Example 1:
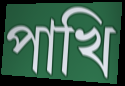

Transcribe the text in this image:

পাখি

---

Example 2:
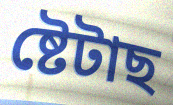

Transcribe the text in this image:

ষ্টেটাছ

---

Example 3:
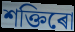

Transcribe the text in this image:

শক্তিৰো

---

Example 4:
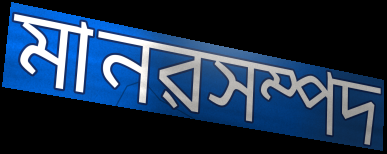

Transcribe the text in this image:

মানৱসম্পদ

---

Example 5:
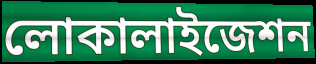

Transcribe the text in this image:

লোকালাইজেশন